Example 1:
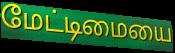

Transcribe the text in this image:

மேட்டிமையை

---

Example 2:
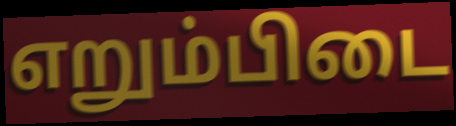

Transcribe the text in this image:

எறும்பிடை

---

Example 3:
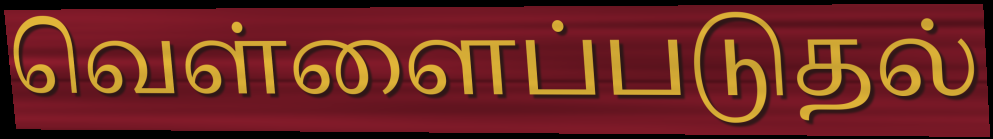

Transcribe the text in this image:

வெள்ளைப்படுதல்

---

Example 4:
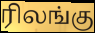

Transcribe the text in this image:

ரிலங்கு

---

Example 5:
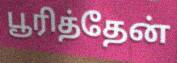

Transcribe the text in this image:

பூரித்தேன்